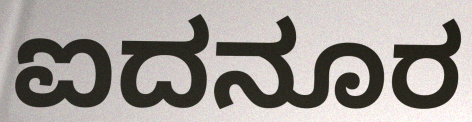
ಐದನೂರ